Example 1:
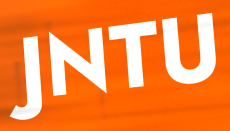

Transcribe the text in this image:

JNTU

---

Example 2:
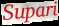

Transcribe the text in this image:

Supari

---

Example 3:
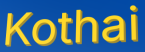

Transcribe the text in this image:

Kothai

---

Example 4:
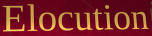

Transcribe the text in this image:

Elocution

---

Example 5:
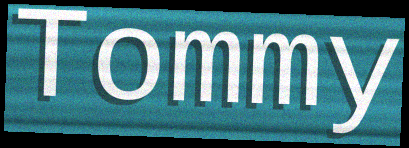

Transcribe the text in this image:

Tommy